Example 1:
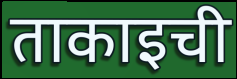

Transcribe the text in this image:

ताकाइची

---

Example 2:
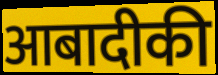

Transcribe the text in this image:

आबादीकी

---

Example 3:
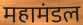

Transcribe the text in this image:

महामंडल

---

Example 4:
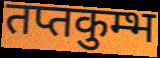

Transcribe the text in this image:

तप्तकुम्भ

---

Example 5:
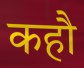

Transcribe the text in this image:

कहौ